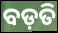
ବଡ଼ତି